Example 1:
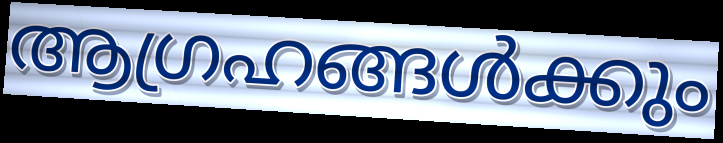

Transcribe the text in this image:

ആഗ്രഹങ്ങൾക്കും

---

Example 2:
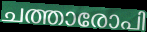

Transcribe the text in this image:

ചത്താരോപി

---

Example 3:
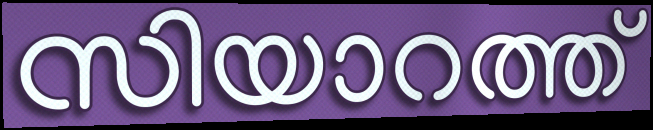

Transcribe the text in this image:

സിയാറത്ത്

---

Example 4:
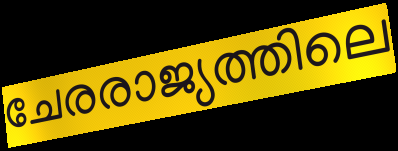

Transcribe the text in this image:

ചേരരാജ്യത്തിലെ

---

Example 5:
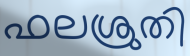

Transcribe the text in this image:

ഫലശ്രുതി